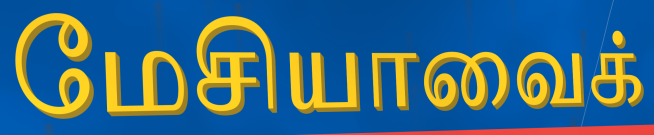
மேசியாவைக்